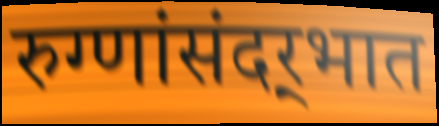
रुग्णांसंदर्भात